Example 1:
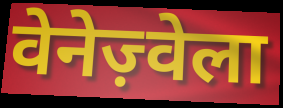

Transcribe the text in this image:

वेनेज़्वेला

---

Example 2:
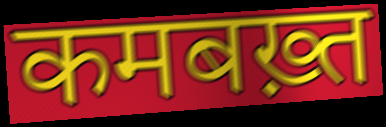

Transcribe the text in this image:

कमबख़्त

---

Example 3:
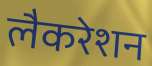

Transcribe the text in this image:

लैकरेशन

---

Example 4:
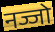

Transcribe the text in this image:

नज्जो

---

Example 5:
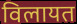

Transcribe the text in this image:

विलायत